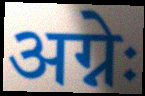
अग्नेः